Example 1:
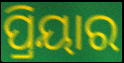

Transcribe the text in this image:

ପ୍ରିୟାର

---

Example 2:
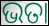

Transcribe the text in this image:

ଭତା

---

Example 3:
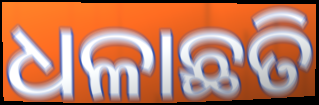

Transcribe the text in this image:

ଧଳାଛତି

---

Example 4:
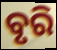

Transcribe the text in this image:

ବୃରି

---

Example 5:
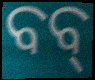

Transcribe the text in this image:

ବବ୍